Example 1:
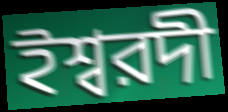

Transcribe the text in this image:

ইশ্বরদী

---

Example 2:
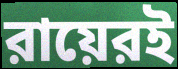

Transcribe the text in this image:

রায়েরই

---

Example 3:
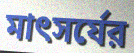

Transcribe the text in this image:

মাৎসর্যের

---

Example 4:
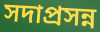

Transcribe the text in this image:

সদাপ্রসন্ন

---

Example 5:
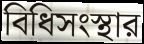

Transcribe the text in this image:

বিধিসংস্থার